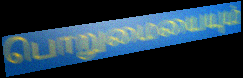
பொறுமையையும்